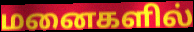
மனைகளில்